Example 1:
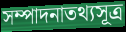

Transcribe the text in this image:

সম্পাদনাতথ্যসূত্র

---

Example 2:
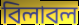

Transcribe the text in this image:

বিলাবল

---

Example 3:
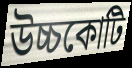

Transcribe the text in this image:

উচ্চকোটি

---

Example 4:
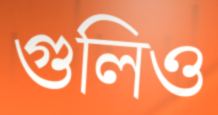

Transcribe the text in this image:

গুলিও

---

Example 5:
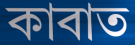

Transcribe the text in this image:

কাবাত